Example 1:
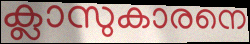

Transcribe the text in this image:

ക്ലാസുകാരനെ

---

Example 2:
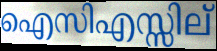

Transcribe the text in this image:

ഐസിഎസ്സില്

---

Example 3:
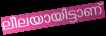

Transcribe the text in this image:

ലീലയായിട്ടാണ്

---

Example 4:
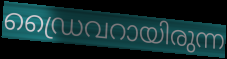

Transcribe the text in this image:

ഡ്രൈവറായിരുന്ന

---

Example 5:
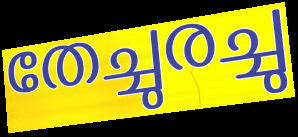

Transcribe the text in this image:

തേച്ചുരച്ചു